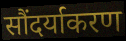
सौंदर्याकरण